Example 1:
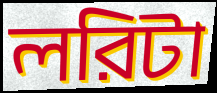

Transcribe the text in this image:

লরিটা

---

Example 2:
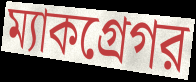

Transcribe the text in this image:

ম্যাকগ্রেগর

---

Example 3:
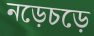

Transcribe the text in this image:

নড়েচড়ে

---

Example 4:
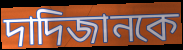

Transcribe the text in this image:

দাদিজানকে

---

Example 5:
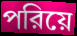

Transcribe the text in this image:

পরিয়ে